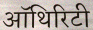
ऑथिरिटी